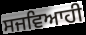
ਸਜਵਿਆਹੀ